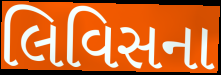
લિવિસના